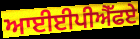
ਆਈਈਪੀਐੱਫਏ